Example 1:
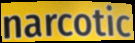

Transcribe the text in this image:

narcotic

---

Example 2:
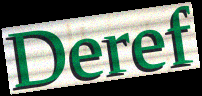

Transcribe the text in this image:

Deref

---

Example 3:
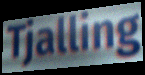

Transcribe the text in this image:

Tjalling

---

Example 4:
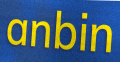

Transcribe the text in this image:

anbin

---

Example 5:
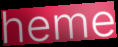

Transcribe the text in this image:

heme